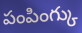
పంపింగ్కు